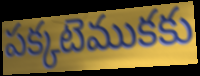
పక్కటెముకకు